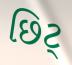
છિટ્